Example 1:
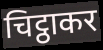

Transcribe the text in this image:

चिट्ठाकर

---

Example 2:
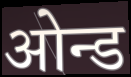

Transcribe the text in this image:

ओन्ड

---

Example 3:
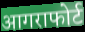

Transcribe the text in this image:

आगराफोर्ट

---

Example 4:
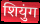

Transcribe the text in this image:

शियुंग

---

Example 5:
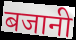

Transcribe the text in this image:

बजानी